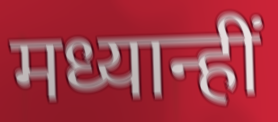
मध्यान्हीं